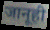
जानूही